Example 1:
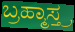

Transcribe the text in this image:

ಬ್ರಹ್ಮಾಸ್ತ್ರ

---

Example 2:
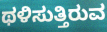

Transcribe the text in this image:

ಥಳಿಸುತ್ತಿರುವ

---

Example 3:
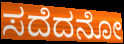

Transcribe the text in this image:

ಸದೆದನೋ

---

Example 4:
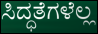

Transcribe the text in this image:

ಸಿದ್ಧತೆಗಳೆಲ್ಲ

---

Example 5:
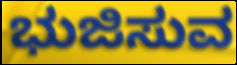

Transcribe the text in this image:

ಭುಜಿಸುವ